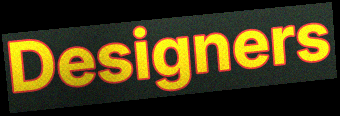
Designers